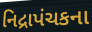
નિદ્રાપંચકના